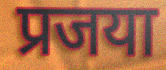
प्रजया